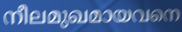
നീലമുഖമായവനെ